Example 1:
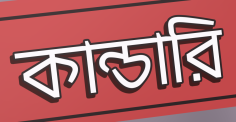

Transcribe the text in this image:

কান্ডারি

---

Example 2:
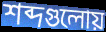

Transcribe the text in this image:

শব্দগুলোয়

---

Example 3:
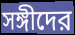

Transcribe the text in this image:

সঙ্গীদের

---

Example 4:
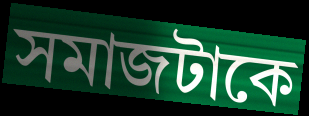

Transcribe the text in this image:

সমাজটাকে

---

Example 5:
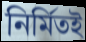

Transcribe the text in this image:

নির্মিতই